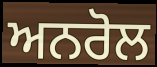
ਅਨਰੋਲ